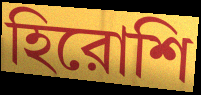
হিরোশি